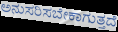
ಅನುಸರಿಸಬೇಕಾಗುತ್ತದೆ